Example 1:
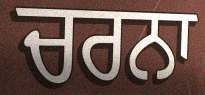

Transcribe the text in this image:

ਚਰਨਾ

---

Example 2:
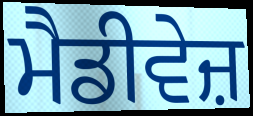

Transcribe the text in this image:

ਮੈਡੀਵੇਜ਼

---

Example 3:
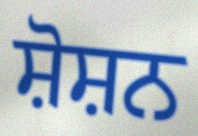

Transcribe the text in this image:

ਸ਼ੋਸ਼ਨ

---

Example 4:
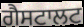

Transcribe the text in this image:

ਗੈਸਟਾਲਟ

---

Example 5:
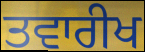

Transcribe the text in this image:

ਤਵਾਰੀਖ